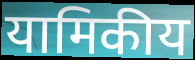
यामिकीय